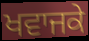
ਖਵਾਜਕੇ